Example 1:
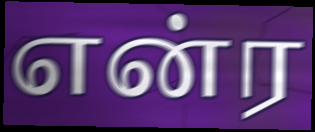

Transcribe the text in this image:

என்ர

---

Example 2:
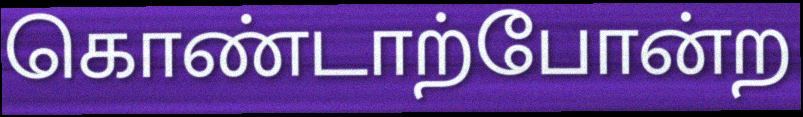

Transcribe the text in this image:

கொண்டாற்போன்ற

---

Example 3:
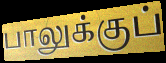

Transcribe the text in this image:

பாலுக்குப்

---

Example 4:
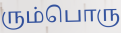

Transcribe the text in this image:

ரும்பொரு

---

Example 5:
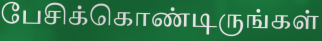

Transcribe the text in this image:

பேசிக்கொண்டிருங்கள்